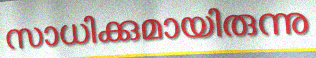
സാധിക്കുമായിരുന്നു